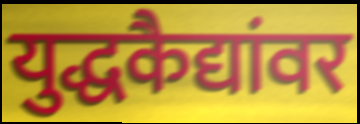
युद्धकैद्यांवर